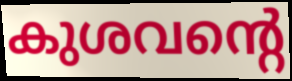
കുശവന്റെ